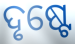
ଦୃଷ୍ଟେ